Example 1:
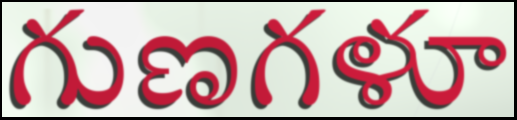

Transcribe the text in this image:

గుణగళూ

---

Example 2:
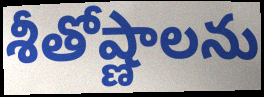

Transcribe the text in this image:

శీతోష్ణాలను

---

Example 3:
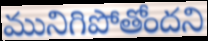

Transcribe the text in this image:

మునిగిపోతోందని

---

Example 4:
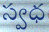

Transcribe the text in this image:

స్వధ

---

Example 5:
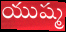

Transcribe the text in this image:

యుష్మ